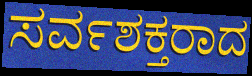
ಸರ್ವಶಕ್ತರಾದ